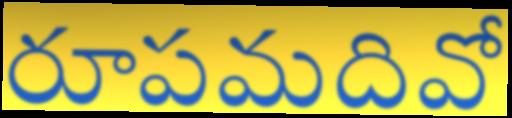
రూపమదివో